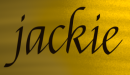
jackie